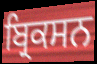
ਬ੍ਰਿਕਸਨ